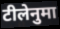
टीलेनुमा